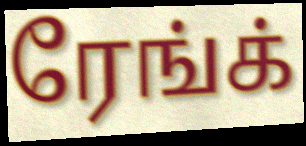
ரேங்க்